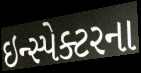
ઇન્સ્પેક્ટરના